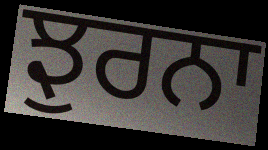
ਝੁਰਨਾ